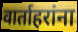
वार्ताहरांना